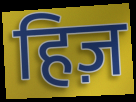
हिज़